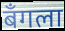
बँगला